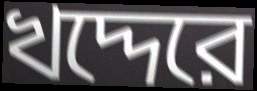
খদ্দেরে